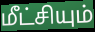
மீட்சியும்